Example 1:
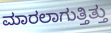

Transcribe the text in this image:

ಮಾರಲಾಗುತ್ತಿತ್ತು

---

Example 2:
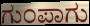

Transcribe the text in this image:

ಗುಂಪಾಗು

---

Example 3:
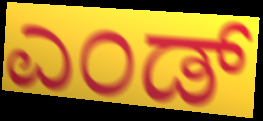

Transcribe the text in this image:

ಎಂಡ್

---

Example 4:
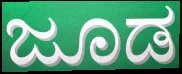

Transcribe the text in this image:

ಜೂಡ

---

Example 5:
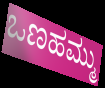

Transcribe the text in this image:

ಒಣಹಮ್ಮು